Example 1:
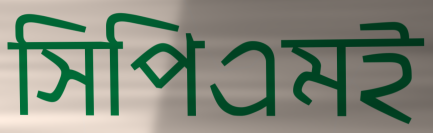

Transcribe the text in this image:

সিপিএমই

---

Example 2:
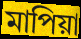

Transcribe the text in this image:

মাপিয়া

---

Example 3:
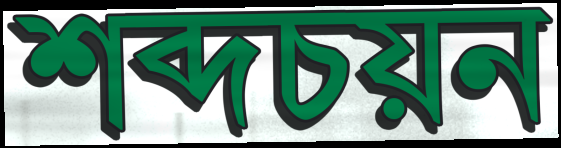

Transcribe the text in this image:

শব্দচয়ন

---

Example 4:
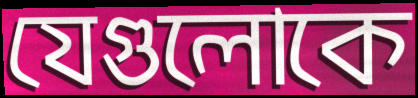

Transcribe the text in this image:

যেগুলোকে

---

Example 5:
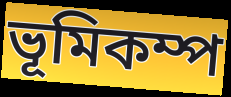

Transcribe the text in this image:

ভূমিকম্প